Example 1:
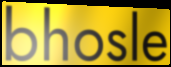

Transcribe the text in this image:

bhosle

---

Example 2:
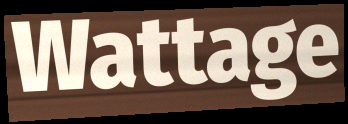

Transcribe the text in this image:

Wattage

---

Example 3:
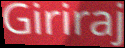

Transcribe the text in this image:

Giriraj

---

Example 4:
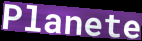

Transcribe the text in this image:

Planete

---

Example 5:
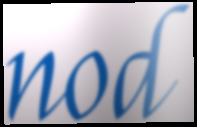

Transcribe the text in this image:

nod